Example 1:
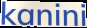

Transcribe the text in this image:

kanini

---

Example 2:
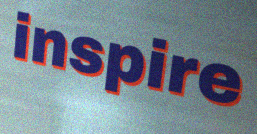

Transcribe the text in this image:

inspire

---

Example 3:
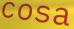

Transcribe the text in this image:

cosa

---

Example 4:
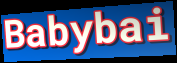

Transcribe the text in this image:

Babybai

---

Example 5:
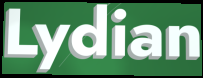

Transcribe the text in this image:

Lydian